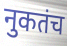
नुकतंच